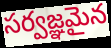
సర్వజ్ఞమైన